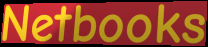
Netbooks